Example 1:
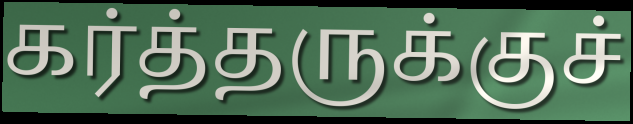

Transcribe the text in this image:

கர்த்தருக்குச்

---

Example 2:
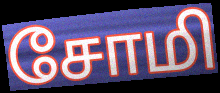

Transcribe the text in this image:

சோமி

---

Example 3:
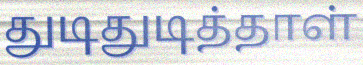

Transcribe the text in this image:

துடிதுடித்தாள்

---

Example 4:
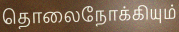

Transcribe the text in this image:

தொலைநோக்கியும்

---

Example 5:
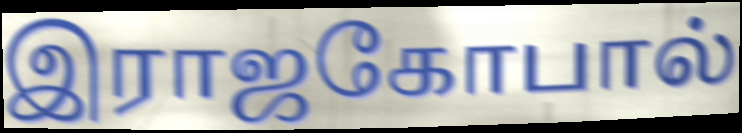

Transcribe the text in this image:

இராஜகோபால்